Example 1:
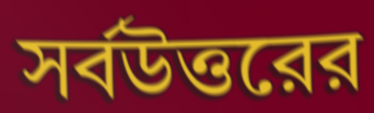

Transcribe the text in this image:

সর্বউত্তরের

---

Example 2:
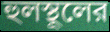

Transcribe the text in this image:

হুলস্থূলের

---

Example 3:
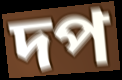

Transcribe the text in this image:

দপ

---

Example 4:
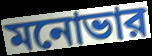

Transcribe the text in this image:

মনোভার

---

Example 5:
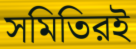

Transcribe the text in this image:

সমিতিরই